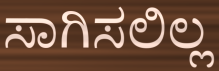
ಸಾಗಿಸಲಿಲ್ಲ